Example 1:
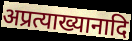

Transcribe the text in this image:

अप्रत्याख्यानादि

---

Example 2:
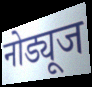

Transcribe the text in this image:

नोड्यूज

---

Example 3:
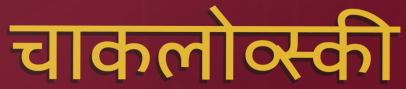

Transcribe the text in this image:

चाकलोव्स्की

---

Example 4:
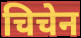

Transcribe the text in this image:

चिचेन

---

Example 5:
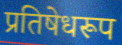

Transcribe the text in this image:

प्रतिषेधरूप